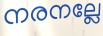
നരനല്ലേ